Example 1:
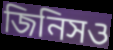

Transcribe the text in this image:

জিনিসও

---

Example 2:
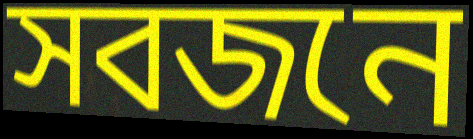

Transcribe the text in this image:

সবজনে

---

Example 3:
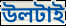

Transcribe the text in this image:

উলটাই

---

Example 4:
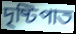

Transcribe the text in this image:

দৃষ্টিপাত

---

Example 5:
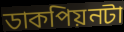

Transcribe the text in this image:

ডাকপিয়নটা